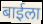
बाईला